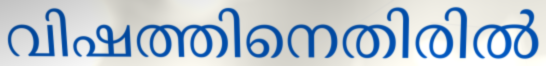
വിഷത്തിനെതിരിൽ